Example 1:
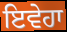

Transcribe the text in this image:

ਇਵੇਹਾ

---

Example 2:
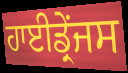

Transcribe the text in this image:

ਹਾਈਡ੍ਰੇਂਜਸ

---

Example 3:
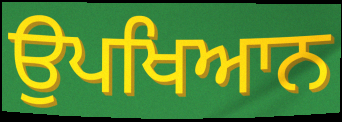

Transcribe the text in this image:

ਉਪਖਿਆਨ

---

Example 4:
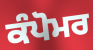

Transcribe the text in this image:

ਕੰਪੋਮਰ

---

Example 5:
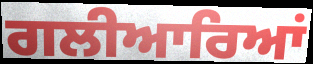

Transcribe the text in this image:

ਗਲੀਆਰਿਆਂ